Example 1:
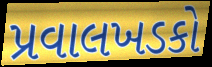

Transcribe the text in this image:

પ્રવાલખડકો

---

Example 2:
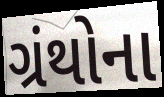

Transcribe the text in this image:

ગ્રંથોના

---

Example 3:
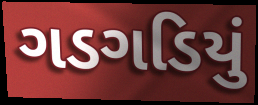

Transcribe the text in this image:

ગડગડિયું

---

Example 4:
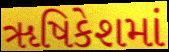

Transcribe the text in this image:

ૠષિકેશમાં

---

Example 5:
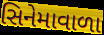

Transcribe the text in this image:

સિનેમાવાળા